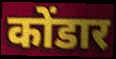
कोंडार